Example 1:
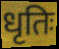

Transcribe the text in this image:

धृतिः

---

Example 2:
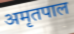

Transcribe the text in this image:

अमृतपाल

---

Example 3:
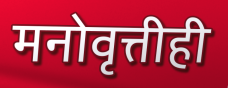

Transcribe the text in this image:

मनोवृत्तीही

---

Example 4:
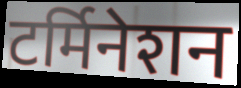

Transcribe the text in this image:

टर्मिनेशन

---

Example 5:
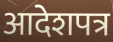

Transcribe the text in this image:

आदेशपत्र